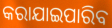
କରାଯାଇପାରିବ